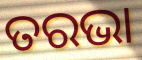
ତରଭା